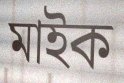
মাইক